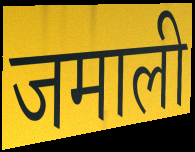
जमाली